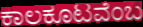
ಕಾಲಕೂಟವೆಂಬ